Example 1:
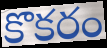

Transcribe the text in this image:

కొకరం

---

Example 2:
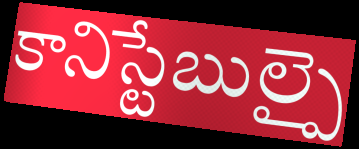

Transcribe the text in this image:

కానిస్టేబుల్పై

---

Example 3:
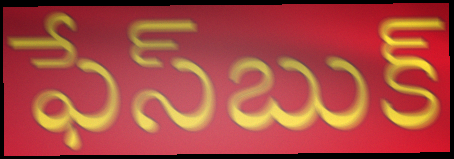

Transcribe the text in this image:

ఫేస్‌బుక్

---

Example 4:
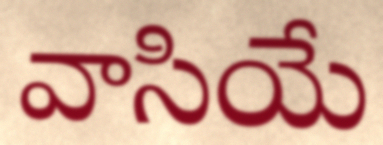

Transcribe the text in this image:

వాసియే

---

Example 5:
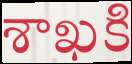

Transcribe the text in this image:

శాఖకి